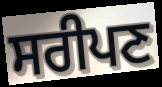
ਸਰੀਪਣ